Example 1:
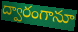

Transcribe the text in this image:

ద్వారంగానూ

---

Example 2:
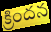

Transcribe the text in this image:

క్రిందన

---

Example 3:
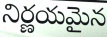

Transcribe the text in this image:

నిర్ణయమైన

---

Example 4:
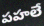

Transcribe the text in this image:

పహలే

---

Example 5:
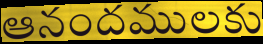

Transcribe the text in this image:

ఆనందములకు